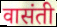
वासंती